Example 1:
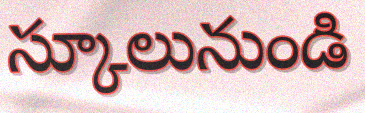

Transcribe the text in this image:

స్కూలునుండి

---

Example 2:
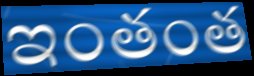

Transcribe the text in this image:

ఇంతంత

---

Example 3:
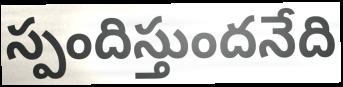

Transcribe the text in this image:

స్పందిస్తుందనేది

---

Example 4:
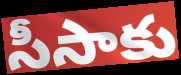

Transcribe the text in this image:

సీసాకు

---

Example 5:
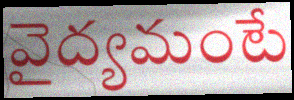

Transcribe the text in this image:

వైద్యమంటే